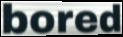
bored